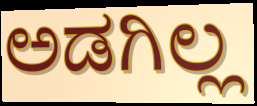
ಅಡಗಿಲ್ಲ